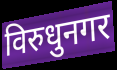
विरुधुनगर